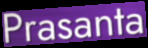
Prasanta